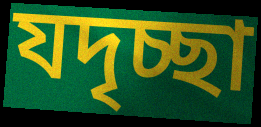
যদৃচ্ছা